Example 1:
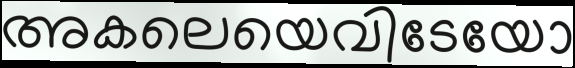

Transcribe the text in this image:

അകലെയെവിടേയോ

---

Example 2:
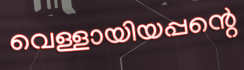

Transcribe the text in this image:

വെള്ളായിയപ്പന്റെ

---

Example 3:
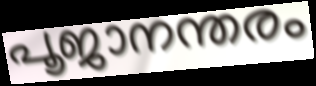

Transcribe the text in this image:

പൂജാനന്തരം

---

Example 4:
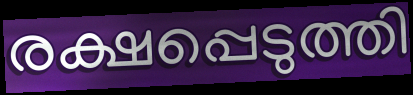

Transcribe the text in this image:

രക്ഷപ്പെടുത്തി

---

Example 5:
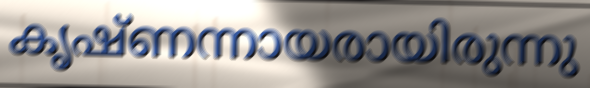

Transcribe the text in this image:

കൃഷ്ണന്നായരായിരുന്നു